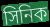
সিনিক